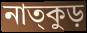
নাত্কুড়